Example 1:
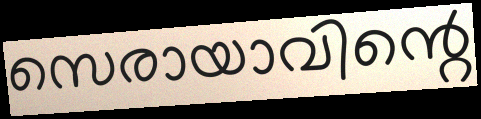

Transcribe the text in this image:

സെരായാവിന്റെ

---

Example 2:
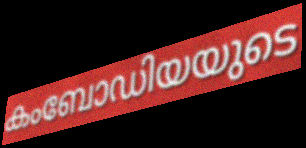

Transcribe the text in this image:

കംബോഡിയയുടെ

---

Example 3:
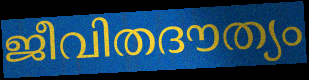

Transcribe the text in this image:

ജീവിതദൗത്യം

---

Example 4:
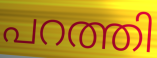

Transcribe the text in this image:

പറത്തി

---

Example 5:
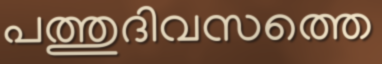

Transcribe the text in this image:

പത്തുദിവസത്തെ